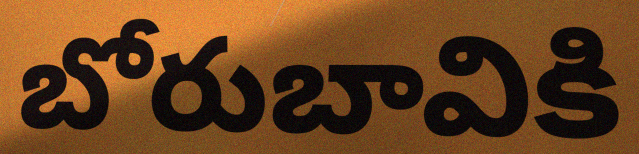
బోరుబావికి